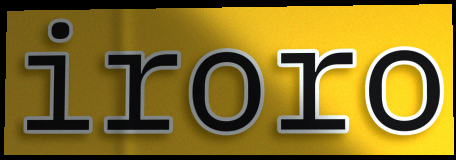
iroro